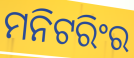
ମନିଟରିଂର